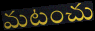
మటంచు